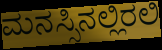
ಮನಸ್ಸಿನಲ್ಲಿರಲಿ